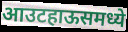
आउटहाऊसमध्ये